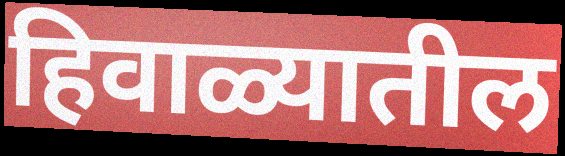
हिवाळ्यातील